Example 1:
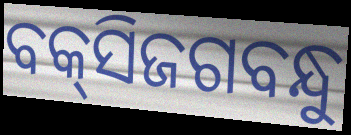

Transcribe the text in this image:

ବକ୍‌ସିଜଗବନ୍ଧୁ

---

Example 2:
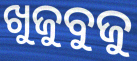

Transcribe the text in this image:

ଖୁଜୁବୁଜୁ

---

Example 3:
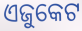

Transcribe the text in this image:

ଏଜୁକେଟ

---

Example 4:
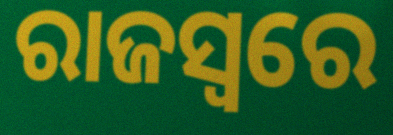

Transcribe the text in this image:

ରାଜସ୍ବରେ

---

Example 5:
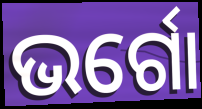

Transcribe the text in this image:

ଭର୍ଗୋ